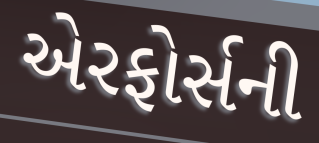
એરફોર્સની